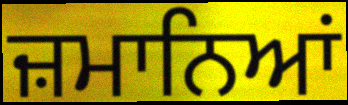
ਜ਼ਮਾਨਿਆਂ